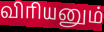
விரியனும்